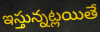
ఇస్తున్నట్లయితే